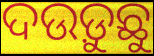
ଦଉଡ଼ୁଛୁ